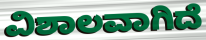
ವಿಶಾಲವಾಗಿದೆ